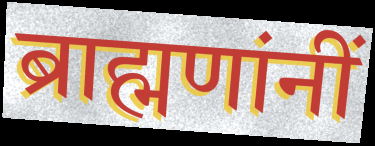
ब्राह्मणांनीं